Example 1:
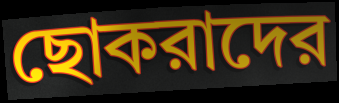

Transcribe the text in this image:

ছোকরাদের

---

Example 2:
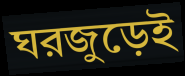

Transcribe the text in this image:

ঘরজুড়েই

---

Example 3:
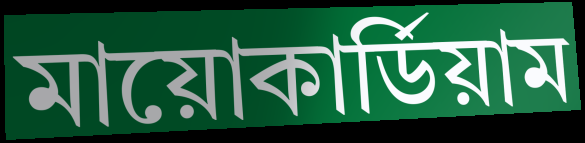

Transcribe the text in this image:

মায়োকার্ডিয়াম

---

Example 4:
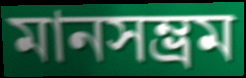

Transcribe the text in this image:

মানসম্ভ্রম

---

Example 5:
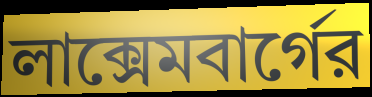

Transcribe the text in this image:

লাক্সেমবার্গের